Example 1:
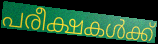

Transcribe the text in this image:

പരീക്ഷകൾക്ക്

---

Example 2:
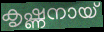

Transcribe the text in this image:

കൃഷ്ണനായ്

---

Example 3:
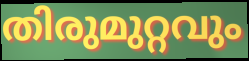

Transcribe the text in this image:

തിരുമുറ്റവും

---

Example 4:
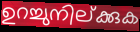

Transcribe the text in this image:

ഉറച്ചുനില്ക്കുക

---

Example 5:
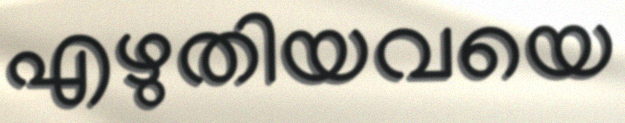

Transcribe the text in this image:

എഴുതിയവയെ